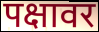
पक्षावर